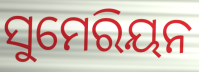
ସୁମେରିୟନ